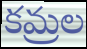
కమ్రల